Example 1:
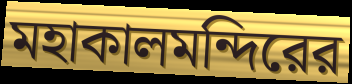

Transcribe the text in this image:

মহাকালমন্দিরের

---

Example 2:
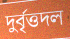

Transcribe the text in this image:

দুর্বৃত্তদল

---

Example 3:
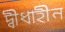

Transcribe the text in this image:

দ্বীধাহীন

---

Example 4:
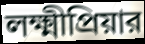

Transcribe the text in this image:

লক্ষ্মীপ্রিয়ার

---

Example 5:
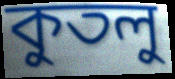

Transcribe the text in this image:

কুতলু